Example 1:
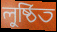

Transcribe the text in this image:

লুষ্ঠিত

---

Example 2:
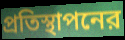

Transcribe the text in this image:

প্রতিস্থাপনের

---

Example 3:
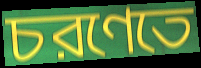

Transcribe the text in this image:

চরণেতে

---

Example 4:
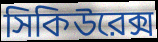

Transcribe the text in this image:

সিকিউরেক্স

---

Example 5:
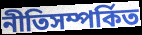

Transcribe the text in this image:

নীতিসম্পর্কিত